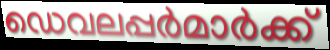
ഡെവലപ്പർമാർക്ക്